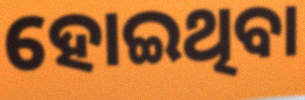
ହୋଇଥିବା